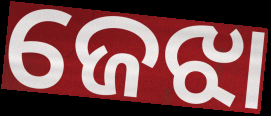
ଜେଝା